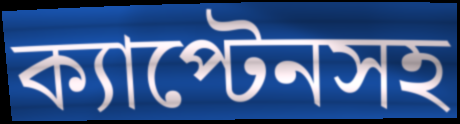
ক্যাপ্টেনসহ